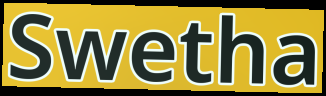
Swetha